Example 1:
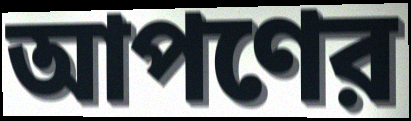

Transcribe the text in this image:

আপণের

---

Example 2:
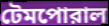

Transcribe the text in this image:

টেমপোরাল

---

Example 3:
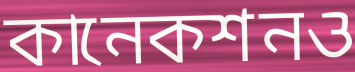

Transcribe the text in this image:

কানেকশনও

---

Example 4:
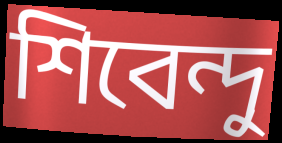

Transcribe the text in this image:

শিবেন্দু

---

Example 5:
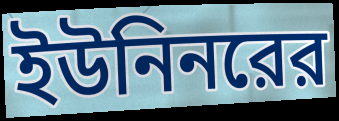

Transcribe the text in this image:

ইউনিনরের